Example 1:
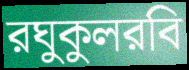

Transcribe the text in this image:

রঘুকুলরবি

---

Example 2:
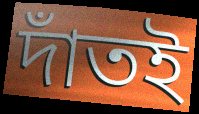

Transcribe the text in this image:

দাঁতই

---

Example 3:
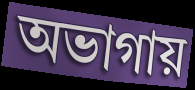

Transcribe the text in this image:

অভাগায়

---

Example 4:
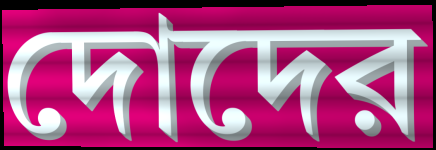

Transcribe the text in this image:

দোদের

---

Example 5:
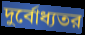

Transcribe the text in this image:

দুর্বোধ্যতর